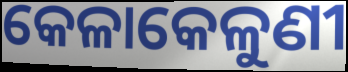
କେଳାକେଳୁଣୀ